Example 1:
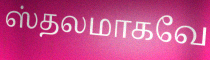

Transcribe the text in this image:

ஸ்தலமாகவே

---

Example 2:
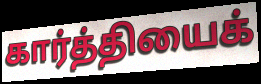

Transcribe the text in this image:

கார்த்தியைக்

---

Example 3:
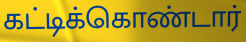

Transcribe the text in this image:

கட்டிக்கொண்டார்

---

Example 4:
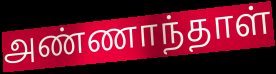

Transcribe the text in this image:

அண்ணாந்தாள்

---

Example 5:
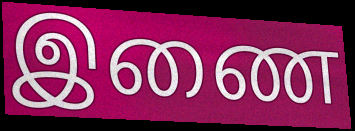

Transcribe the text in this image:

இணை